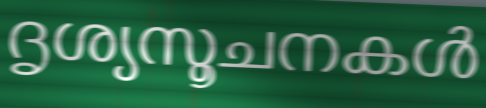
ദൃശ്യസൂചനകൾ